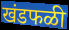
खंडफळी